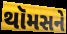
થૉમસને